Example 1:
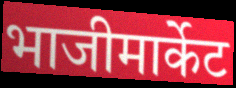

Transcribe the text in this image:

भाजीमार्केट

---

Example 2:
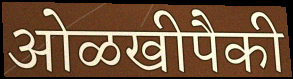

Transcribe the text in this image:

ओळखीपैकी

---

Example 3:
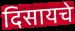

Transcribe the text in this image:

दिसायचे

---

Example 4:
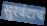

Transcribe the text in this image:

सुरवंटाचं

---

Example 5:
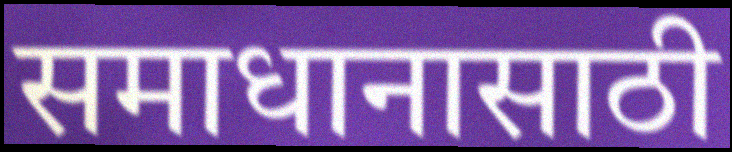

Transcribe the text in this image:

समाधानासाठी